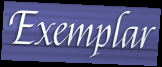
Exemplar